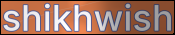
shikhwish